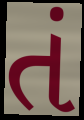
તં